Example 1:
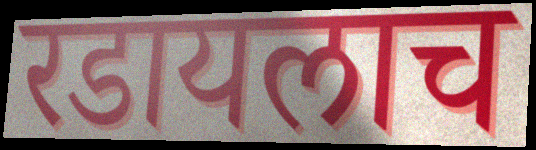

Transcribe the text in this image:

रडायलाच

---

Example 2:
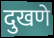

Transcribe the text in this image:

दुखणे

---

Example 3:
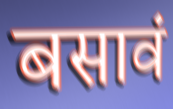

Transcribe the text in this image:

बसावं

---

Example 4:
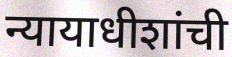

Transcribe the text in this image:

न्यायाधीशांची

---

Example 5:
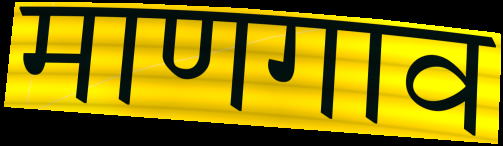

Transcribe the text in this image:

माणगाव